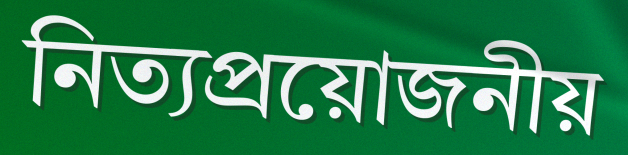
নিত্যপ্রয়োজনীয়